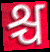
श्च